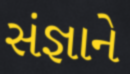
સંજ્ઞાને